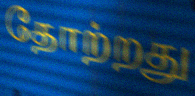
தோற்றது